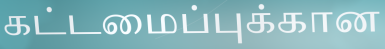
கட்டமைப்புக்கான